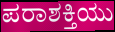
ಪರಾಶಕ್ತಿಯು